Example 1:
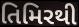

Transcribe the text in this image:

તિમિરથી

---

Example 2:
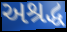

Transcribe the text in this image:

અશ્રદ્ધ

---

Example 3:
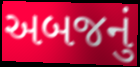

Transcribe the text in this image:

અબજનું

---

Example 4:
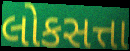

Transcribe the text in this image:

લોકસત્તા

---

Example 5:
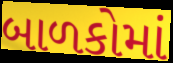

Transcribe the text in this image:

બાળકોમાં